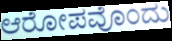
ಆರೋಪವೊಂದು